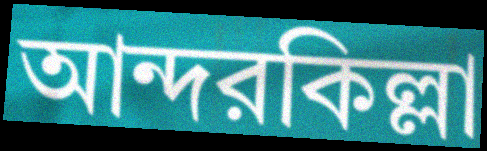
আন্দরকিল্লা